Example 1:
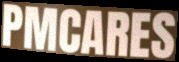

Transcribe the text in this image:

PMCARES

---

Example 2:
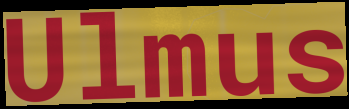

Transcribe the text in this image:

Ulmus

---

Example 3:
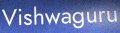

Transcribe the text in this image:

Vishwaguru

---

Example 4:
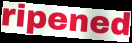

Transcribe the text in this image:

ripened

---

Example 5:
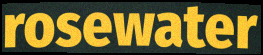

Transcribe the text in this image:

rosewater